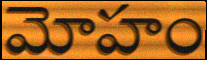
మోహం